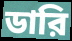
ডারি